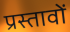
प्रस्‍तावों